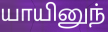
யாயினுந்